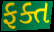
ફક્ત